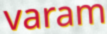
varam